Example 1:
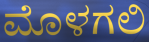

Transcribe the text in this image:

ಮೊಳಗಲಿ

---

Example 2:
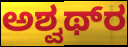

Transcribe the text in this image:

ಅಶ್ವಥ್‌ರ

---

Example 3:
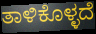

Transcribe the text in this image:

ತಾಳಿಕೊಳ್ಳದೆ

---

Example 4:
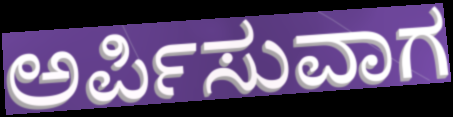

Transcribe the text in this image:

ಅರ್ಪಿಸುವಾಗ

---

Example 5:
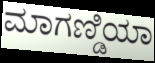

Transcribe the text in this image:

ಮಾಗಣ್ಡಿಯಾ